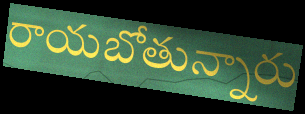
రాయబోతున్నారు